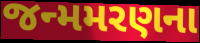
જન્મમરણના